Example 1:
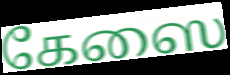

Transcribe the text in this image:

கேஸை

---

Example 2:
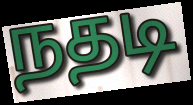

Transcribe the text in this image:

நதடி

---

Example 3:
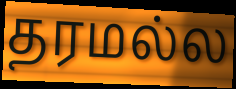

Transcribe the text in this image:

தரமல்ல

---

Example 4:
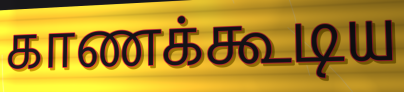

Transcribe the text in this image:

காணக்கூடிய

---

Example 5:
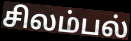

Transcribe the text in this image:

சிலம்பல்